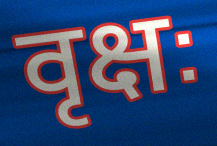
वृक्षः